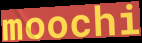
moochi